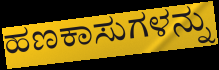
ಹಣಕಾಸುಗಳನ್ನು